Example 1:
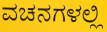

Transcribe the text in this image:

ವಚನಗಳಲ್ಲಿ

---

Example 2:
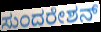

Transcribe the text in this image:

ಸುಂದರೇಶನ್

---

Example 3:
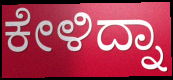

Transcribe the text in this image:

ಕೇಳಿದ್ನಾ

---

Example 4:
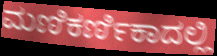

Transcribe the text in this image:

ಮಣಿಕರ್ಣಿಕಾದಲ್ಲಿ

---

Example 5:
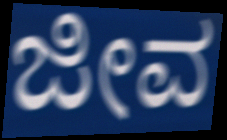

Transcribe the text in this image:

ಜೀವ